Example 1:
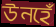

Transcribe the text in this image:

উনহেঁ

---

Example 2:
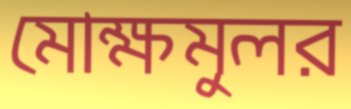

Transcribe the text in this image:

মোক্ষমুলর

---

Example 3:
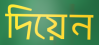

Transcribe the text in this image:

দিয়েন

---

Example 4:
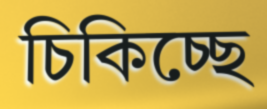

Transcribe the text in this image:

চিকিচ্ছে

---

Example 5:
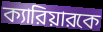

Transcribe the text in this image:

ক্যারিয়ারকে